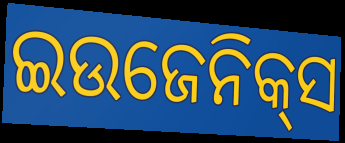
ଇଉଜେନିକ୍‌ସ